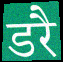
डरै